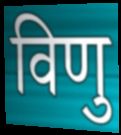
विणु